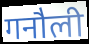
गनौली